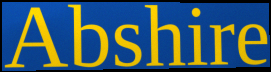
Abshire